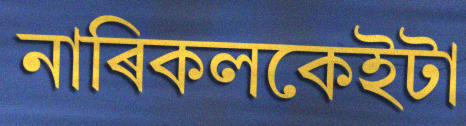
নাৰিকলকেইটা